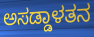
ಅಸಡ್ಡಾಳತನ